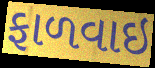
ફાળવાઇ